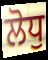
ਲੋਧੁ